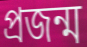
প্রজন্ম